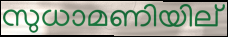
സുധാമണിയില്